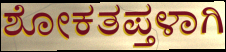
ಶೋಕತಪ್ತಳಾಗಿ